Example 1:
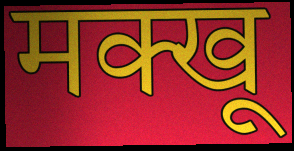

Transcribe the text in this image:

मक्खू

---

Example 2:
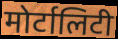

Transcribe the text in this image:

मोर्टालिटी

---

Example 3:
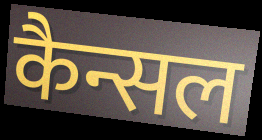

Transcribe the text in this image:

कैन्सल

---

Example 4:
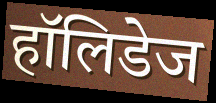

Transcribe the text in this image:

हॉलिडेज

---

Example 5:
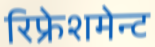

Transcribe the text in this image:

रिफ्रेशमेन्ट